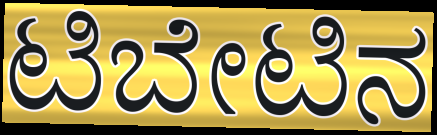
ಟಿಬೇಟಿನ